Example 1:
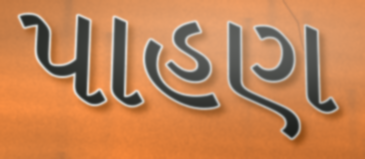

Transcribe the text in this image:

પાહણ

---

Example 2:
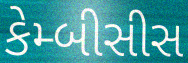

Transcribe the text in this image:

કેમ્બીસીસ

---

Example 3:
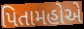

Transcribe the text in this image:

પિતામહોએ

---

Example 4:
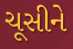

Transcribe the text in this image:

ચૂસીને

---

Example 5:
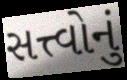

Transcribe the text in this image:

સત્ત્વોનું